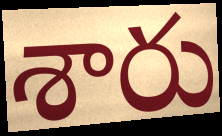
శారు